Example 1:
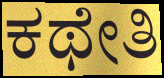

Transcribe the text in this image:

ಕಥೇತಿ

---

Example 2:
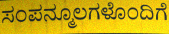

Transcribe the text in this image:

ಸಂಪನ್ಮೂಲಗಳೊಂದಿಗೆ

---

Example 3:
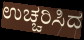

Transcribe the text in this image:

ಉಚ್ಚರಿಸಿದ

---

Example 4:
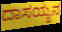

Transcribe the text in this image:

ದಾಸಯ್ಯನ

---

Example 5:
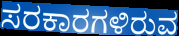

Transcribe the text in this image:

ಸರಕಾರಗಳಿರುವ